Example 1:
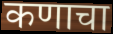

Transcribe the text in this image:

कणाचा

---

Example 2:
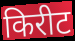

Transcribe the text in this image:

किरीट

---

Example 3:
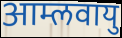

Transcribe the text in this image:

आम्लवायु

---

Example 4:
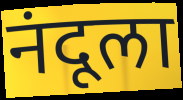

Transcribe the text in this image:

नंदूला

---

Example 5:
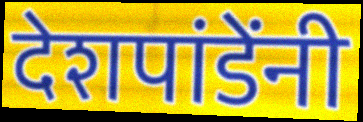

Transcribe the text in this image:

देशपांडेंनी